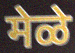
मेळे